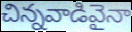
చిన్నవాడివైనా